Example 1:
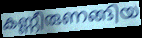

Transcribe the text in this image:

കണ്ണീരുണങ്ങിയ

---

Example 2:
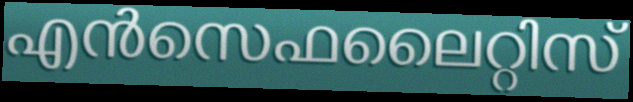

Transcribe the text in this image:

എൻസെഫലൈറ്റിസ്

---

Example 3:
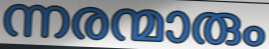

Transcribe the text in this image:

ന്നരന്മാരും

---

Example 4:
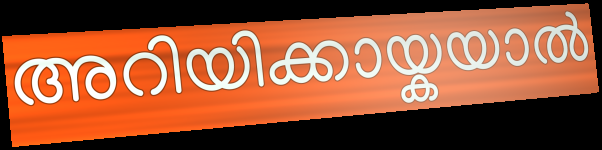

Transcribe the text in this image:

അറിയിക്കായ്കയാൽ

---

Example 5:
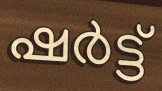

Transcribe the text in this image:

ഷർട്ട്